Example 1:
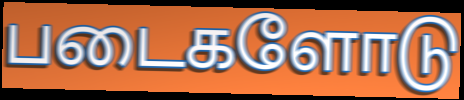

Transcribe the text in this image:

படைகளோடு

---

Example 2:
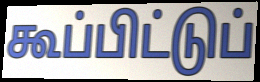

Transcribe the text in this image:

கூப்பிட்டுப்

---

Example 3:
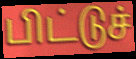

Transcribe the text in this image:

பிட்டுச்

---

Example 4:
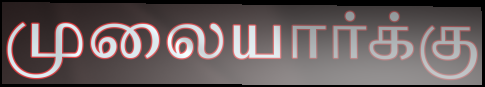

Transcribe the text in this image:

முலையார்க்கு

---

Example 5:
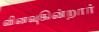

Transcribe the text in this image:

வினவுகின்றார்